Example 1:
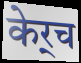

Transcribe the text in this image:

केर्च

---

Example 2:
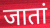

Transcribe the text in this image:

जातां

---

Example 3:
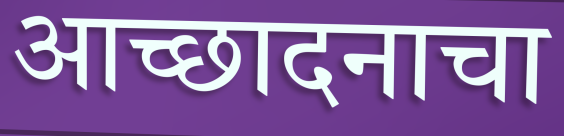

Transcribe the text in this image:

आच्छादनाचा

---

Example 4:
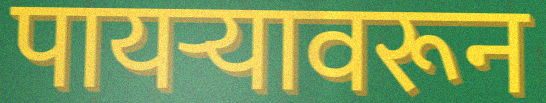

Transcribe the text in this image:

पायऱ्यावरून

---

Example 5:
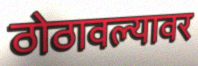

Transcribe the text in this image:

ठोठावल्यावर